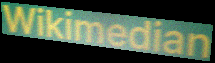
Wikimedian